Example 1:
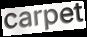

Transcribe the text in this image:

carpet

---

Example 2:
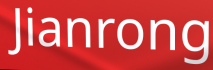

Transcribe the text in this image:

Jianrong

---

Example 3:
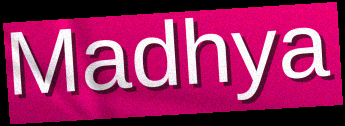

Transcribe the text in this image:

Madhya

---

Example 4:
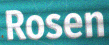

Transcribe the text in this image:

Rosen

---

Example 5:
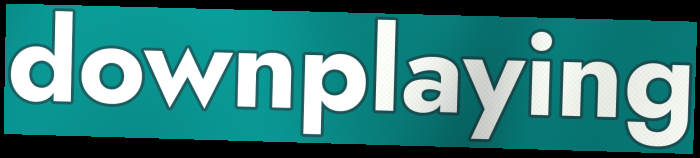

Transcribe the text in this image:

downplaying